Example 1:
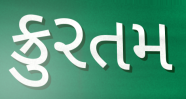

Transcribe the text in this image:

ક્રુરતમ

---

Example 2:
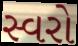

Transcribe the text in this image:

સ્વરો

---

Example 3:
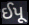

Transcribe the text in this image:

ઈપૂ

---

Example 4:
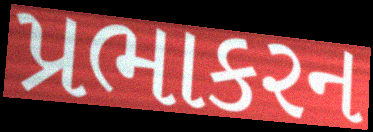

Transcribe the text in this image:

પ્રભાકરન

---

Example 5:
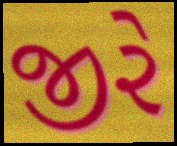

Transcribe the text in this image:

જીરે